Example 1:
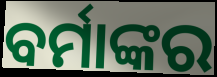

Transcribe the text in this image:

ବର୍ମାଙ୍କର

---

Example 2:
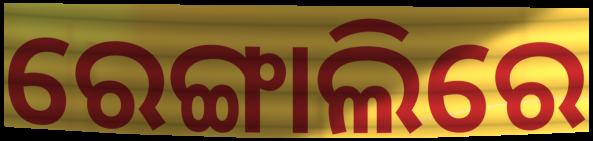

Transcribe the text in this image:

ରେଙ୍ଗାଲିରେ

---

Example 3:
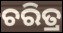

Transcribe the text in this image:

ଚରିତ୍ର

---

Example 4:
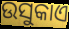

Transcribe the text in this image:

ଉସୁକାଏ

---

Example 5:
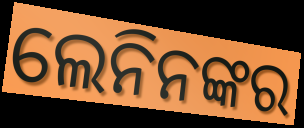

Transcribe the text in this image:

ଲେନିନଙ୍କର